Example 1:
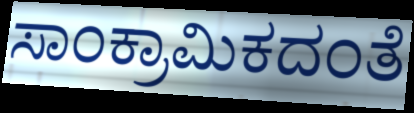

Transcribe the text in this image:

ಸಾಂಕ್ರಾಮಿಕದಂತೆ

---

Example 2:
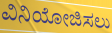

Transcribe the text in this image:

ವಿನಿಯೋಜಿಸಲು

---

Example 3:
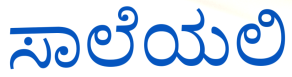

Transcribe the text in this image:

ಸಾಲೆಯಲಿ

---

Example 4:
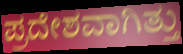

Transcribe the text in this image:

ಪ್ರದೇಶವಾಗಿತ್ತು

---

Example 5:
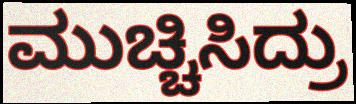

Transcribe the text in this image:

ಮುಚ್ಚಿಸಿದ್ರು